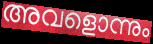
അവളൊന്നും